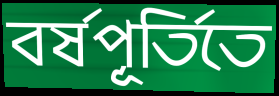
বর্ষপূর্তিতে